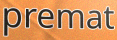
premat